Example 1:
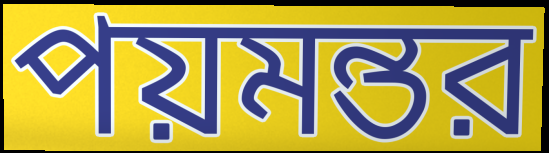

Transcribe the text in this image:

পয়মন্তর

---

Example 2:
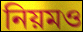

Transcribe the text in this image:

নিয়মও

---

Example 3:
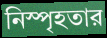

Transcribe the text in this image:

নিস্পৃহতার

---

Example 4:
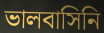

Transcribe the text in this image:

ভালবাসিনি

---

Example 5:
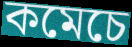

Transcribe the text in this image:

কমেচে